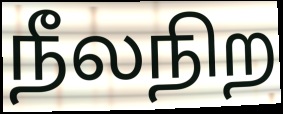
நீலநிற